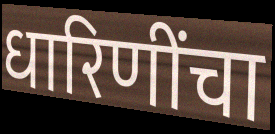
धारिणींचा